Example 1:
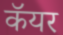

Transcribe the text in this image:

कॅयर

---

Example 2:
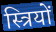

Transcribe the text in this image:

स्‍त्रियों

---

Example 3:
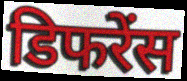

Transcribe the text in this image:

डिफरेंस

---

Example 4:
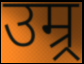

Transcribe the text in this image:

उम्र्र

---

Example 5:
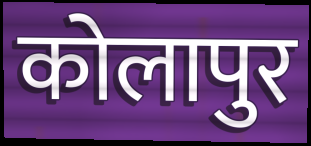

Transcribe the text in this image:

कोलापुर